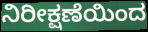
ನಿರೀಕ್ಷಣೆಯಿಂದ